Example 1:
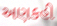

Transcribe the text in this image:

અણકહી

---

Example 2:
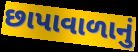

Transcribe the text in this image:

છાપાવાળાનું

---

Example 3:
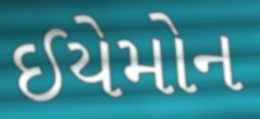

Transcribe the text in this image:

ઈયેમોન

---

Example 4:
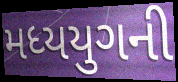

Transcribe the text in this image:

મધ્યયુગની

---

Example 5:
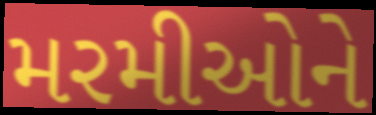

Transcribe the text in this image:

મરમીઓને